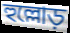
হুল্লোড়